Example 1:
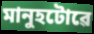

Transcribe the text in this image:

মানুহটোৱে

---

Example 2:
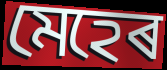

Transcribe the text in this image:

মেহেৰ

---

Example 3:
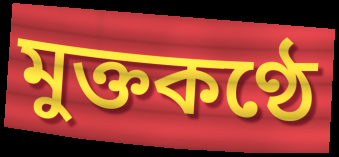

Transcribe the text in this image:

মুক্তকণ্ঠে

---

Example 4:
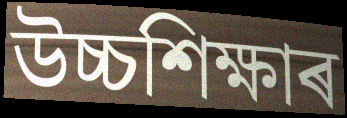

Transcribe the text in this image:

উচ্চশিক্ষাৰ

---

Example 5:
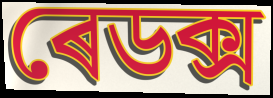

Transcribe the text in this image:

ৰেডক্স